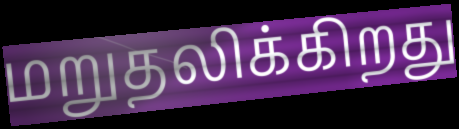
மறுதலிக்கிறது